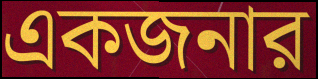
একজনার